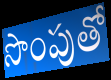
సొంపుతో